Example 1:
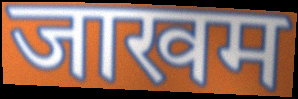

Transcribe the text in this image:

जाखम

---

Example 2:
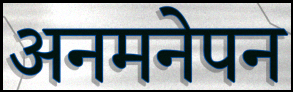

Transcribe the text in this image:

अनमनेपन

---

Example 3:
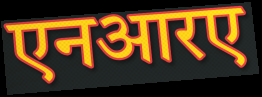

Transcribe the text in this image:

एनआरए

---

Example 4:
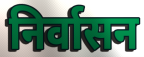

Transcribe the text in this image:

निर्वासन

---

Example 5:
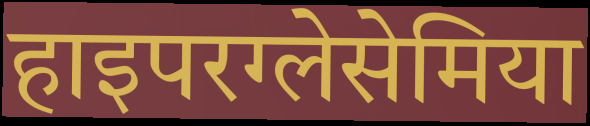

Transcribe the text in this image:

हाइपरग्लेसेमिया